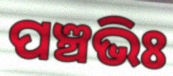
ପଞ୍ଚଭିଃ